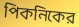
পিকনিকের